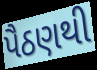
પૈઠણથી